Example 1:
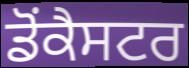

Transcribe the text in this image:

ਡੋਂਕੈਸਟਰ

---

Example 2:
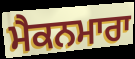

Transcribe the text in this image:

ਮੈਕਨਮਾਰਾ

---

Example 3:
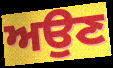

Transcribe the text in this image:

ਅਉਣ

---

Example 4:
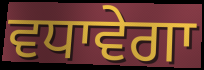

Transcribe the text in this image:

ਵਧਾਵੇਗਾ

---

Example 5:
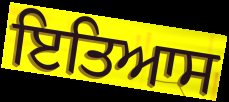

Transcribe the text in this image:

ਇਤਿਆਸ